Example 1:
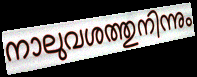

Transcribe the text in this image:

നാലുവശത്തുനിന്നും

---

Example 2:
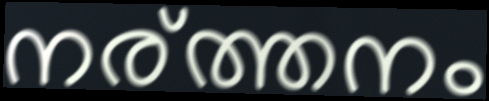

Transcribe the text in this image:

നര്ത്തനം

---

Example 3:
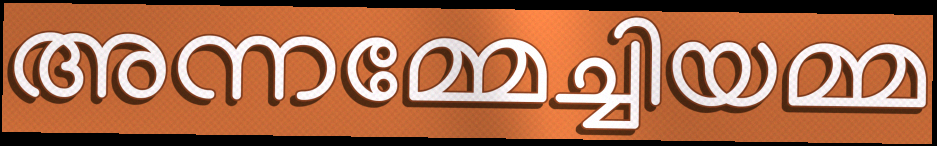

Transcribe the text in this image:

അന്നമ്മേച്ചിയമ്മ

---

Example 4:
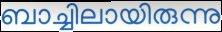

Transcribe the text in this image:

ബാച്ചിലായിരുന്നു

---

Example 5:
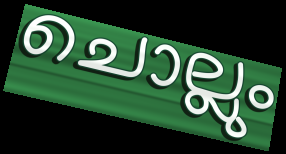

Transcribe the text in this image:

ചൊല്ലും